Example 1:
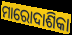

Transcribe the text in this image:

ମାରୋଦାଶିକା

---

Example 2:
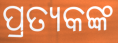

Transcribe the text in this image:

ପ୍ରତ୍ୟକଙ୍କ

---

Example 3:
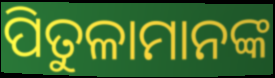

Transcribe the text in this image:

ପିତୁଳାମାନଙ୍କ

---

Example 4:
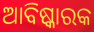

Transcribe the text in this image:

ଆବିଷ୍କାରକ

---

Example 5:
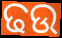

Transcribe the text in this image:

ଢଉ